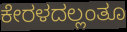
ಕೇರಳದಲ್ಲಂತೂ